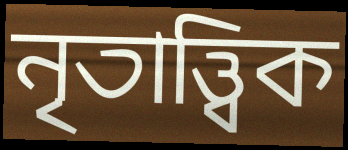
নৃতাত্ত্বিক